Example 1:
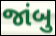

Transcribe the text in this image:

જાંબુ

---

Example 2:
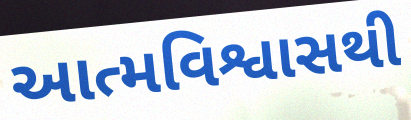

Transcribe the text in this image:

આત્મવિશ્વાસથી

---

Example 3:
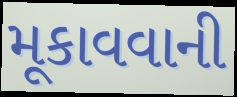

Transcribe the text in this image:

મૂકાવવાની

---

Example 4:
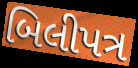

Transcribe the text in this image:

બિલીપત્ર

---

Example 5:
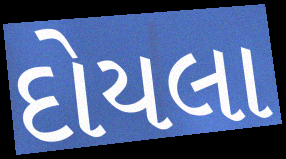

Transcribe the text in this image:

દોયલા